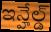
ఇన్హేల్డ్